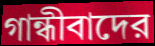
গান্ধীবাদের